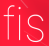
fis